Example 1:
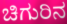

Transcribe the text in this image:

ಚಿಗುರಿನ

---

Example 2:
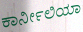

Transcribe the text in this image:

ಕಾರ್ನೀಲಿಯಾ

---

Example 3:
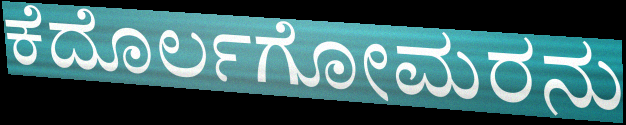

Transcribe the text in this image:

ಕೆದೊರ್ಲಗೋಮರನು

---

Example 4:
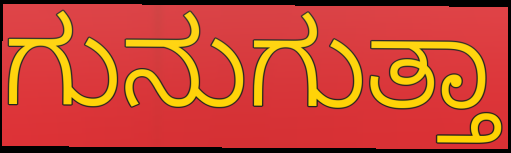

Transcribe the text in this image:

ಗುನುಗುತ್ತಾ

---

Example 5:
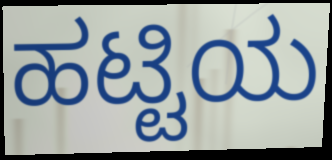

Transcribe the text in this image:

ಹಟ್ಟಿಯ